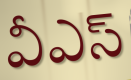
వీఎస్